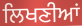
ਲਿਖਣੀਆਂ